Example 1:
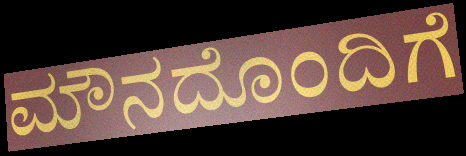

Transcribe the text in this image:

ಮೌನದೊಂದಿಗೆ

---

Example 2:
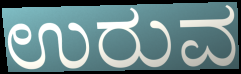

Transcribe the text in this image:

ಉರುವ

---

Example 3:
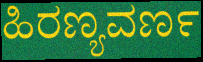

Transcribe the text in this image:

ಹಿರಣ್ಯವರ್ಣ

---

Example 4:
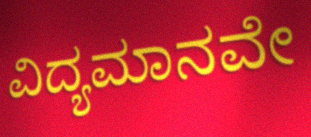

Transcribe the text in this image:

ವಿದ್ಯಮಾನವೇ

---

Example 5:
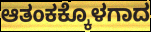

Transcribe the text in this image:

ಆತಂಕಕ್ಕೊಳಗಾದ